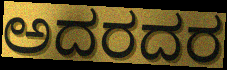
ಅದರದರ